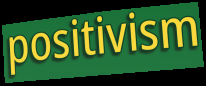
positivism